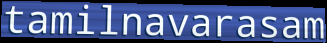
tamilnavarasam